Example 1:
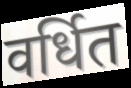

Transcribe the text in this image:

वर्धित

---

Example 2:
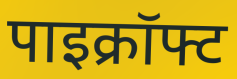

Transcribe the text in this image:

पाइक्रॉफ्ट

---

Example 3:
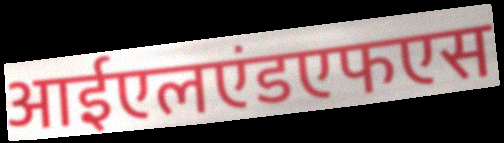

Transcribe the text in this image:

आईएलएंडएफएस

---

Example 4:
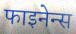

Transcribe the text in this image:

फाइनेन्स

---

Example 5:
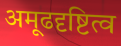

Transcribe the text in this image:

अमूढदृष्टित्व